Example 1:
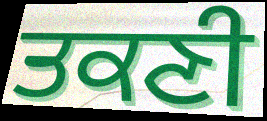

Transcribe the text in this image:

ਤਕਣੀ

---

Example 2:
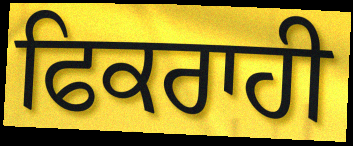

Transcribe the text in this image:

ਫਿਕਰਾਹੀ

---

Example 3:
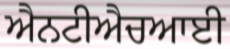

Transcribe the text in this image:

ਐਨਟੀਐਚਆਈ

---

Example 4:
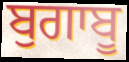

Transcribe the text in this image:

ਬੁਗਾਬੂ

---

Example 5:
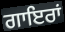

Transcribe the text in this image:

ਗਾਇਰਾਂ